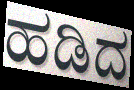
ಹಡಿದ